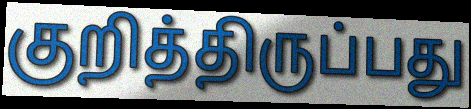
குறித்திருப்பது